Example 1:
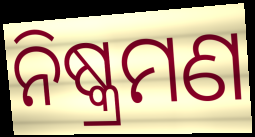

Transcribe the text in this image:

ନିଷ୍କ୍ରମଣ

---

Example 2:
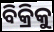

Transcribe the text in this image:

ବିକ୍ରିକୁ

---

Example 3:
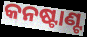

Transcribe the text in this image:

କନଷ୍ଟାଣ୍ଟ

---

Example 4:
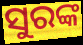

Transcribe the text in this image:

ସୁରଙ୍କ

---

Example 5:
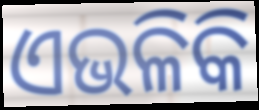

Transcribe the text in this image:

ଏଭଳିକି